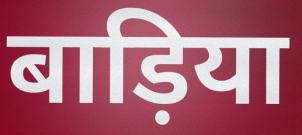
बाड़िया